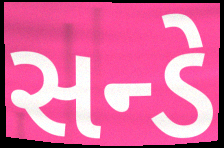
સન્ડે